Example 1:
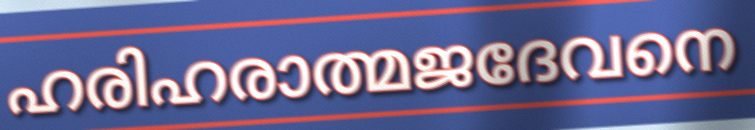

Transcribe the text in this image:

ഹരിഹരാത്മജദേവനെ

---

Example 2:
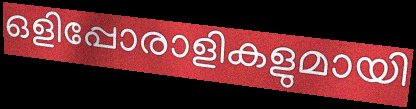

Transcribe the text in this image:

ഒളിപ്പോരാളികളുമായി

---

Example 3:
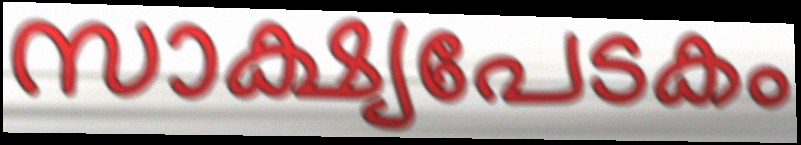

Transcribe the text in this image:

സാക്ഷ്യപേടകം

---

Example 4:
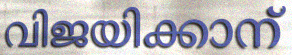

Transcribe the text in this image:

വിജയിക്കാന്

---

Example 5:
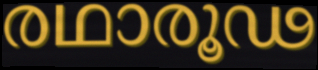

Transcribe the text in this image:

രഥാരൂഢ